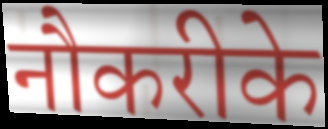
नौकरीके